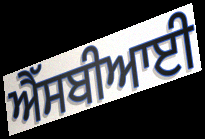
ਐੱਸਬੀਆਈ